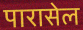
पारासेल